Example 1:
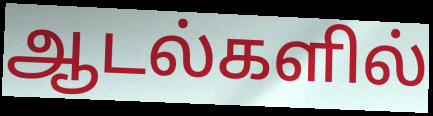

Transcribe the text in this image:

ஆடல்களில்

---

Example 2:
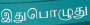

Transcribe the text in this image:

இதுபொழுது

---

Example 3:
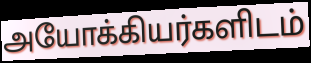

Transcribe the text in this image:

அயோக்கியர்களிடம்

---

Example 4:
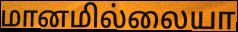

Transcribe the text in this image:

மானமில்லையா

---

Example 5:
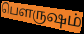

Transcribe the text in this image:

பௌருஷம்